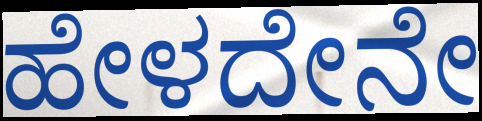
ಹೇಳದೇನೇ